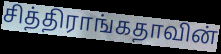
சித்திராங்கதாவின்